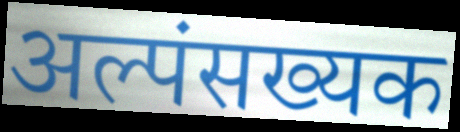
अल्पंसख्यक